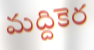
మద్దికెర